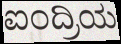
ಐಂದ್ರಿಯ